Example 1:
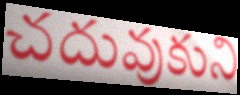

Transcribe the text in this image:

చదువుకుని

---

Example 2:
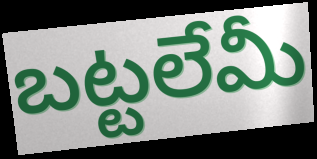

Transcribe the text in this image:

బట్టలేమీ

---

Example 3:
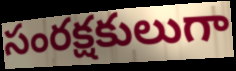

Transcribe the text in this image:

సంరక్షకులుగా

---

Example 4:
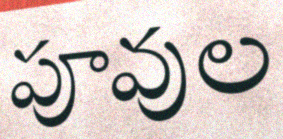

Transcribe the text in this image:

పూవుల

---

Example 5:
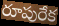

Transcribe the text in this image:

రూపురేక